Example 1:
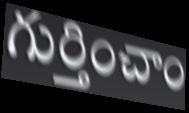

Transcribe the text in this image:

గుర్తించాం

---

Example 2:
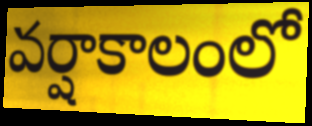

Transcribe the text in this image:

వర్షాకాలంలో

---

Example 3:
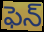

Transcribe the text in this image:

ఫెన్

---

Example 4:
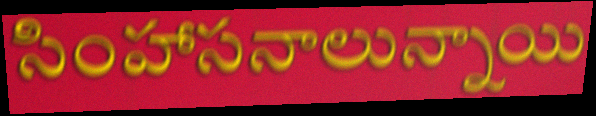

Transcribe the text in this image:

సింహాసనాలున్నాయి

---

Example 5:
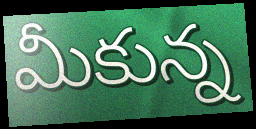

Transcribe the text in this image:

మీకున్న